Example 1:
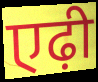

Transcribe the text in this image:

एढ़ी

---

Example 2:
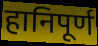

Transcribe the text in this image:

हानिपूर्ण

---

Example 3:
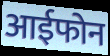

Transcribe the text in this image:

आईफोन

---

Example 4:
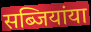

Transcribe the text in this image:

सब्जियांया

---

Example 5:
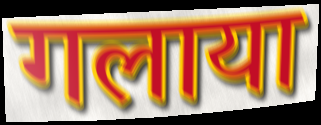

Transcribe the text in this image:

गलाया